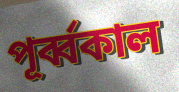
পূর্ব্বকাল